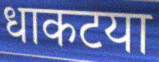
धाकटया